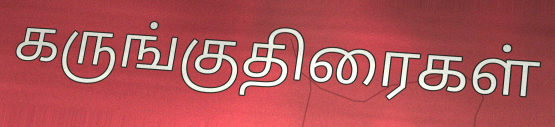
கருங்குதிரைகள்